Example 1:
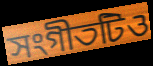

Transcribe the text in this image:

সংগীতটিও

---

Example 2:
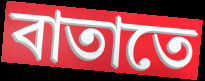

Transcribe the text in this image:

বাতাতে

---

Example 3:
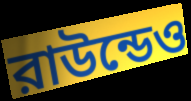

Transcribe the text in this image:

রাউন্ডেও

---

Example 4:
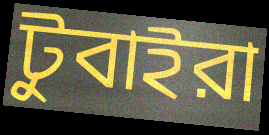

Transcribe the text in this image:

টুবাইরা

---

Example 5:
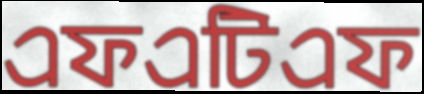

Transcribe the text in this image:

এফএটিএফ